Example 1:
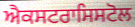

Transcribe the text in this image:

ਐਕਸਟਰਾਸਿਸਟੋਲ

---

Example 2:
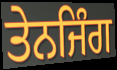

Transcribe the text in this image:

ਤੇਨਜਿੰਗ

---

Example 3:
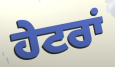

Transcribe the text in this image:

ਹੇਟਰਾਂ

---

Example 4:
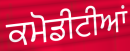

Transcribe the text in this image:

ਕਮੋਡੀਟੀਆਂ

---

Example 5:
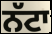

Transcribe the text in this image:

ਨੱਟਾ